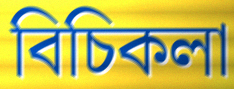
বিচিকলা